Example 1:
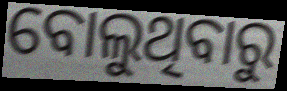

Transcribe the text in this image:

ବୋଲୁଥିବାରୁ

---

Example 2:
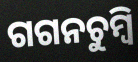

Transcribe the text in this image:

ଗଗନଚୁମ୍ବି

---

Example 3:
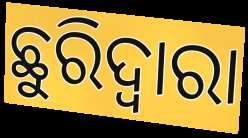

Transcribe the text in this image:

ଛୁରିଦ୍ୱାରା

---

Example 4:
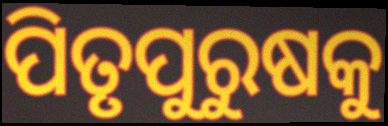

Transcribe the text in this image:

ପିତୃପୁରୁଷକୁ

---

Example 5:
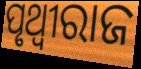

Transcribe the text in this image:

ପୃଥ୍ବୀରାଜ